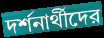
দর্শনার্থীদের